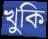
খুকি